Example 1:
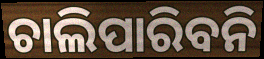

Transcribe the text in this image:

ଚାଲିପାରିବନି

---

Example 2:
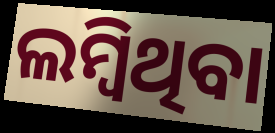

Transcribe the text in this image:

ଲମ୍ବିଥିବା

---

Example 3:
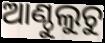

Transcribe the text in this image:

ଆଣ୍ଠୁଲୁଚୁ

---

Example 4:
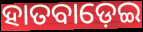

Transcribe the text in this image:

ହାତବାଡ଼େଇ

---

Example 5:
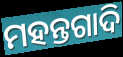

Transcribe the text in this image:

ମହନ୍ତଗାଦି